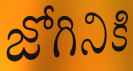
జోగినికి